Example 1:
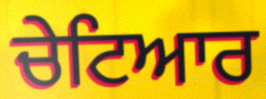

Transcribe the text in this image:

ਚੇਟਿਆਰ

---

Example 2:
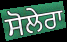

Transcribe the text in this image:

ਸੋਲੇਰਾ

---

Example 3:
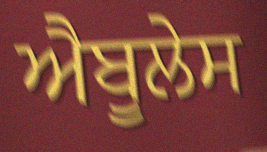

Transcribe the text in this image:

ਐਬੂਲੇਸ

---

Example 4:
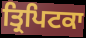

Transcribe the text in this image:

ਤ੍ਰਿਪਿਟਕਾ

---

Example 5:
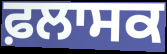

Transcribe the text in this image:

ਫ਼ਲਾਸਕ